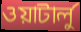
ওয়াটার্লু